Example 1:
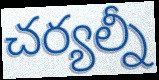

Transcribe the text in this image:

చర్యల్నీ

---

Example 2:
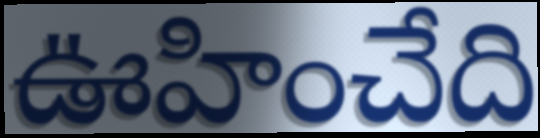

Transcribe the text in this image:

ఊహించేది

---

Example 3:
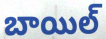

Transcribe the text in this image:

బాయిల్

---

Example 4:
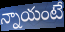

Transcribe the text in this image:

న్నాయంటే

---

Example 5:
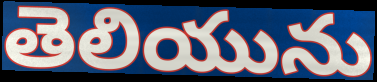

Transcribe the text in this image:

తెలియును